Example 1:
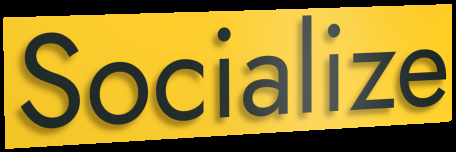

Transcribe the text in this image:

Socialize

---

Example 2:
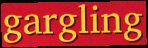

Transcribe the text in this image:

gargling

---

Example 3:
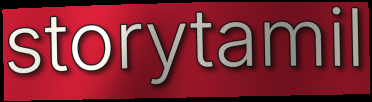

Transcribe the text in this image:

storytamil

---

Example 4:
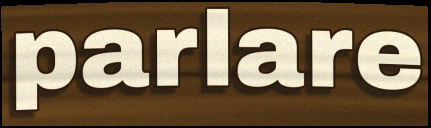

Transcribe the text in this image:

parlare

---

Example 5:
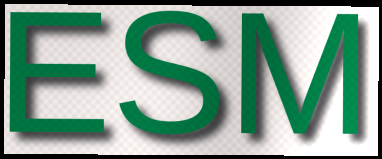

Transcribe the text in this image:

ESM